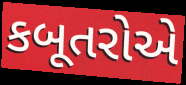
કબૂતરોએ